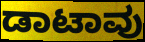
ಡಾಟಾವು